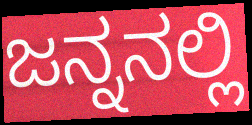
ಜನ್ನನಲ್ಲಿ